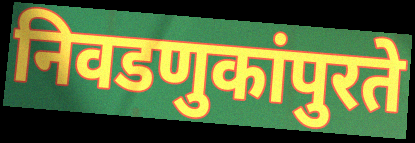
निवडणुकांपुरते